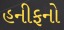
હનીફનો